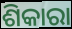
ଶିକାରା